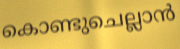
കൊണ്ടുചെല്ലാൻ